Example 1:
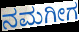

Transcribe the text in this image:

ನಮಗೀಗ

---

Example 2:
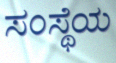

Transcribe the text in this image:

ಸಂಸ್ಥೆಯ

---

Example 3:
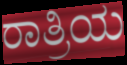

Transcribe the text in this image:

ರಾತ್ರಿಯ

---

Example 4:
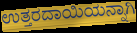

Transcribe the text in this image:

ಉತ್ತರದಾಯಿಯನ್ನಾಗಿ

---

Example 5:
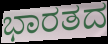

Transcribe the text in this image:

ಭಾರತದ